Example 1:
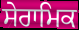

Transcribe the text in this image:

ਸੇਰਾਮਿਕ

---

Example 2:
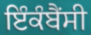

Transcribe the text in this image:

ਇੰਕੰਬੈਂਸੀ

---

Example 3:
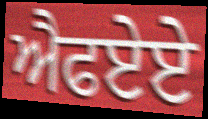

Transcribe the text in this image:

ਐਫਏਏ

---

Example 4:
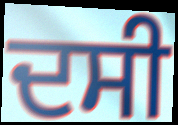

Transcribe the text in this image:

ਦਸੀ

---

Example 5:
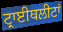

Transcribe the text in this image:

ਟ੍ਰਾਈਥਲੀਟਾਂ